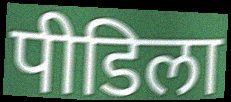
पीडिला